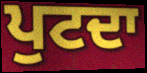
ਪੁਟਦਾ